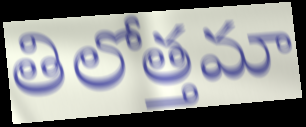
తిలోత్తమా